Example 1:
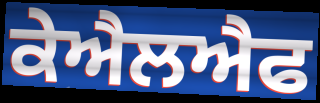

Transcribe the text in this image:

ਕੇਐਲਐਫ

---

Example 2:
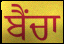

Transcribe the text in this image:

ਬੈਂਚਾ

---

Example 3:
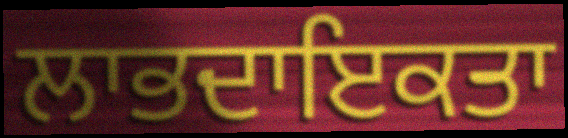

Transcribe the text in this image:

ਲਾਭਦਾਇਕਤਾ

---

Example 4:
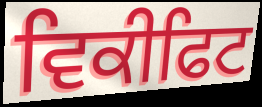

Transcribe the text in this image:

ਵਿਕੀਫਿਟ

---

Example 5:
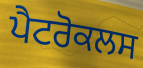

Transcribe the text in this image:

ਪੈਟਰੋਕਲਸ